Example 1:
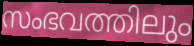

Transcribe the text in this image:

സംഭവത്തിലും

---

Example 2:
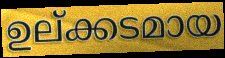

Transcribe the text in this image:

ഉല്ക്കടമായ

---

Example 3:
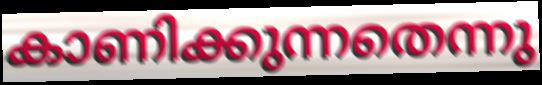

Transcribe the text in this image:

കാണിക്കുന്നതെന്നു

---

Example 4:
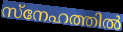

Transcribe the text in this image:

സ്നേഹത്തിൽ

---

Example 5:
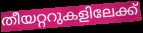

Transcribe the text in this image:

തീയറ്ററുകളിലേക്ക്